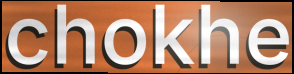
chokhe